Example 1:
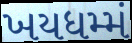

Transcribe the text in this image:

ખયધમ્મં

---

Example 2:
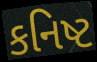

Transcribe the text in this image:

કનિષ્ટ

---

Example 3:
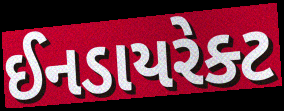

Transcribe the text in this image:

ઈનડાયરેક્ટ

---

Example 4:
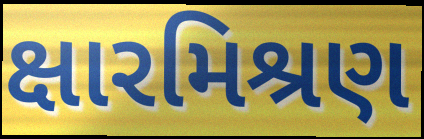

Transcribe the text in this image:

ક્ષારમિશ્રણ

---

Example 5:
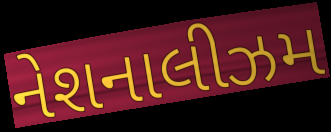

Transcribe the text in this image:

નેશનાલીઝમ